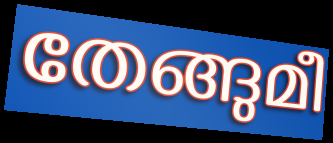
തേങ്ങുമീ